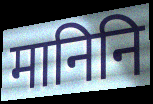
मानिनि